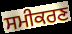
ਸਮੀਕਰਣ